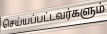
செய்யப்பட்டவர்களும்